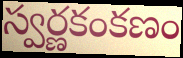
స్వర్ణకంకణం